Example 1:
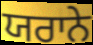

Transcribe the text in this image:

ਯਰਾਨੇ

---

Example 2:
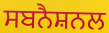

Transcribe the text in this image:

ਸਬਨੈਸ਼ਨਲ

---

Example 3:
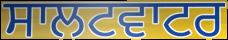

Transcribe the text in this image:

ਸਾਲਟਵਾਟਰ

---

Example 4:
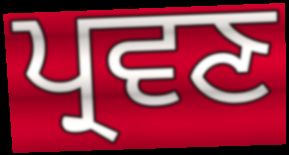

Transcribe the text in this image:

ਪ੍ਰਵਣ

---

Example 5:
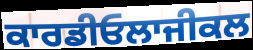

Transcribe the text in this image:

ਕਾਰਡੀਓਲਾਜੀਕਲ